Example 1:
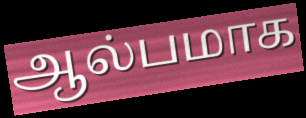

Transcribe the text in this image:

ஆல்பமாக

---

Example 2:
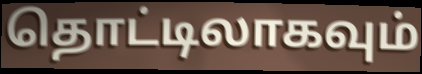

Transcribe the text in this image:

தொட்டிலாகவும்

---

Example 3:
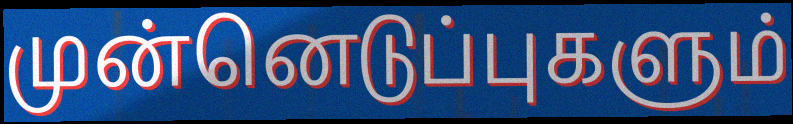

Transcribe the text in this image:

முன்னெடுப்புகளும்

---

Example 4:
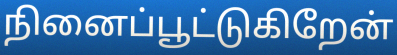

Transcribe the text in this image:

நினைப்பூட்டுகிறேன்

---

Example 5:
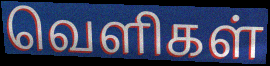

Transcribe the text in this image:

வெளிகள்